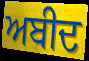
ਅਬੀਦ